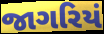
જાગરિયં